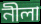
নীলা